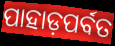
ପାହାଡ଼ପର୍ବତ